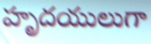
హృదయులుగా